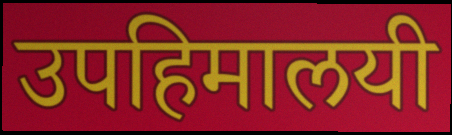
उपहिमालयी